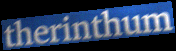
therinthum